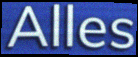
Alles